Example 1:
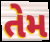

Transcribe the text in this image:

તેમ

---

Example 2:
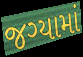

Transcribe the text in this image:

જગ્યામાં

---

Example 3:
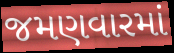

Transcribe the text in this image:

જમણવારમાં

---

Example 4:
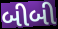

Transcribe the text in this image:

બીબી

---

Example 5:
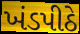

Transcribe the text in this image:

ખંડપીઠે